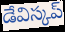
డేవిస్కప్